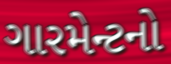
ગારમેન્ટનો